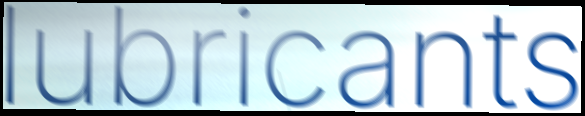
lubricants